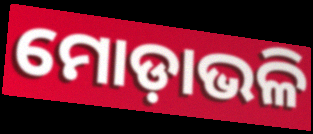
ମୋଡ଼ାଭଳି